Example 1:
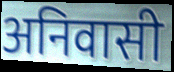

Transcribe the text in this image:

अनिवासी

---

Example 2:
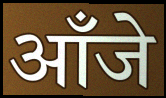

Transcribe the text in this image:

आँजे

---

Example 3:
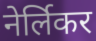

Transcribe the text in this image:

नेर्लिकर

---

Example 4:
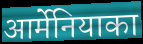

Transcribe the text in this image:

आर्मेनियाका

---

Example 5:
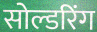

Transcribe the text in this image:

सोल्डरिंग